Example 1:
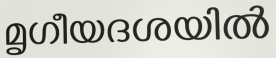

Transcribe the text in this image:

മൃഗീയദശയിൽ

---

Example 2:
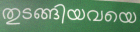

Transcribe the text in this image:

തുടങ്ങിയവയെ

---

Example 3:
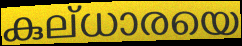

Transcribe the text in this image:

കുല്ധാരയെ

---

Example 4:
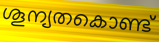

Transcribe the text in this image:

ശൂന്യതകൊണ്ട്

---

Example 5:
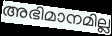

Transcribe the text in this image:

അഭിമാനമില്ല